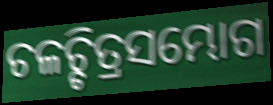
ଚଳଚ୍ଚିତ୍ରସମ୍ଭୋଗ